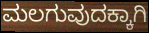
ಮಲಗುವುದಕ್ಕಾಗಿ